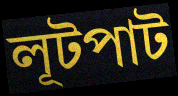
লূটপাট